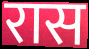
रास